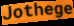
Jothege